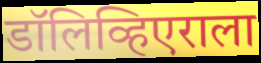
डॉलिव्हिएराला